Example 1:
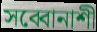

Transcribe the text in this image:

সব্বোনাশী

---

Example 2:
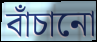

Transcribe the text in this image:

বাঁচানো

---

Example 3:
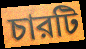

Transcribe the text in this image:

চারটি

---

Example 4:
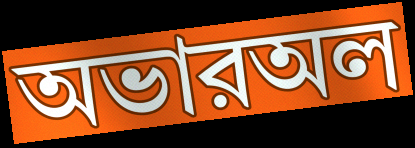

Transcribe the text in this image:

অভারঅল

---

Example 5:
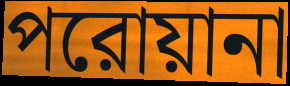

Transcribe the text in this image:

পরোয়ানা